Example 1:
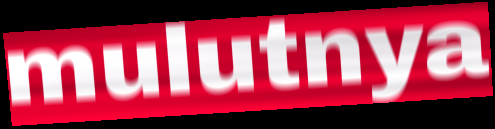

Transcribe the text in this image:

mulutnya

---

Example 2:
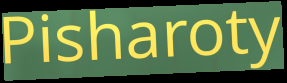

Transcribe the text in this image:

Pisharoty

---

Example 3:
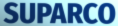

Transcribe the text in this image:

SUPARCO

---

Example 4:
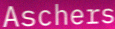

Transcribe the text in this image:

Aschers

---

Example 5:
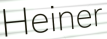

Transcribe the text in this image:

Heiner